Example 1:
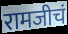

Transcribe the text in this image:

रामजीचं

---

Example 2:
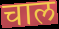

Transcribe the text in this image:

चाल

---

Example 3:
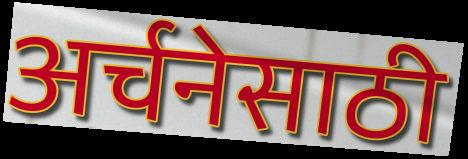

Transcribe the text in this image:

अर्चनेसाठी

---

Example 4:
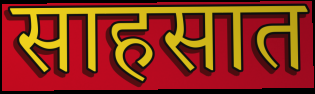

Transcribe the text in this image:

साहसात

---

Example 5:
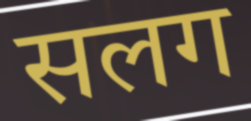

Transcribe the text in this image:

सलग